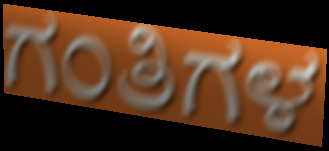
ಗಂತಿಗಳ